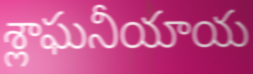
శ్లాఘనీయాయ